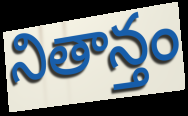
నితాన్తం